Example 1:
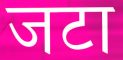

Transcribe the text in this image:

जटा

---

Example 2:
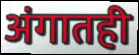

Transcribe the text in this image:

अंगातही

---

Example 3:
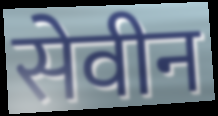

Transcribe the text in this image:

सेवीन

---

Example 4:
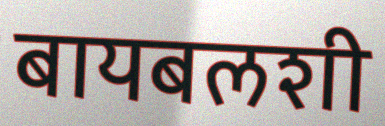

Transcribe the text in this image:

बायबलशी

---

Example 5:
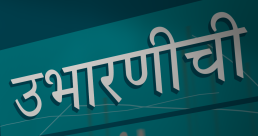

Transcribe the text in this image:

उभारणीची